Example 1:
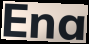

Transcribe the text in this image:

Ena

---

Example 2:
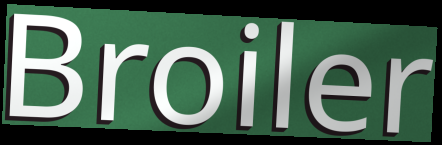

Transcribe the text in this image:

Broiler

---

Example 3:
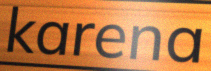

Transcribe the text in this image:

karena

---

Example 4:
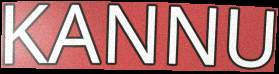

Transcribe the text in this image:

KANNU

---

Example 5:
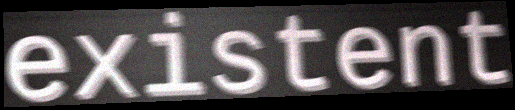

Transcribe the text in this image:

existent